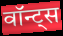
वॉन्ट्स